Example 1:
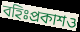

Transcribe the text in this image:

বহিঃপ্রকাশও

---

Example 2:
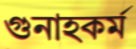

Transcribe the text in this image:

গুনাহকর্ম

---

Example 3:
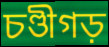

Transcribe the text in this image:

চণ্ডীগড়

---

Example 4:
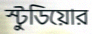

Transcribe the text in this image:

স্টুডিয়োর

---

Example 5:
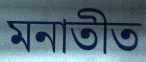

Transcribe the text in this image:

মনাতীত